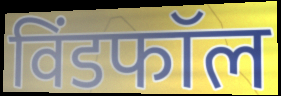
विंडफॉल